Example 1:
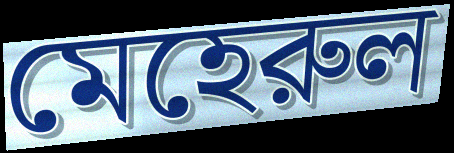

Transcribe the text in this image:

মেহেরুল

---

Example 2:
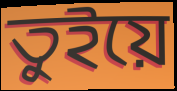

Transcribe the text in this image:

তুইয়ে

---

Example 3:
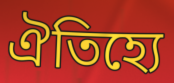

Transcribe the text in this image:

ঐতিহ্যে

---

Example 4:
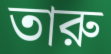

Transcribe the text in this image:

তারু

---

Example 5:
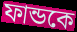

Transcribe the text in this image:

ফান্ডকে